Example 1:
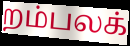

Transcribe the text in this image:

றம்பலக்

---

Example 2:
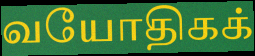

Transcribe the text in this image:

வயோதிகக்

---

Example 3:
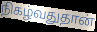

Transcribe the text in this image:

நிகழ்வதுதான்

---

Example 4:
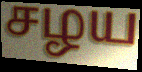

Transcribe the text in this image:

சழய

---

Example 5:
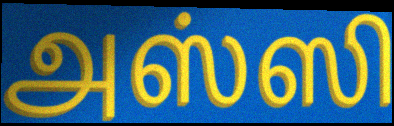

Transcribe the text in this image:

அஸ்ஸி